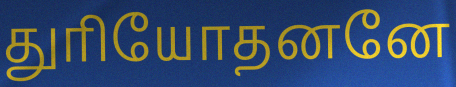
துரியோதனனே